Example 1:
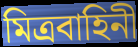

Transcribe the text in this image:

মিত্রবাহিনী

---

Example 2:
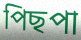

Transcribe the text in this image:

পিছপা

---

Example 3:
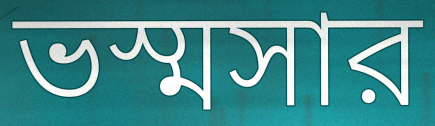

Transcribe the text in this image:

ভস্মসার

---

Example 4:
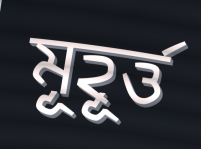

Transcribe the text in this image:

মূহূর্ত্ত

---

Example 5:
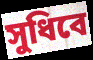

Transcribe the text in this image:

সুধিবে